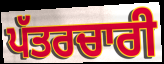
ਪੱਤਰਚਾਰੀ